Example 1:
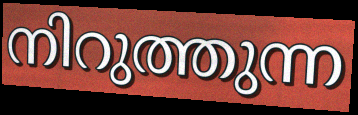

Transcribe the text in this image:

നിറുത്തുന്ന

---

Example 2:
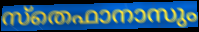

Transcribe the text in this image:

സ്തെഫാനാസും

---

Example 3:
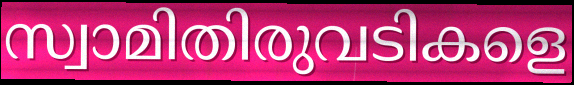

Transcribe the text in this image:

സ്വാമിതിരുവടികളെ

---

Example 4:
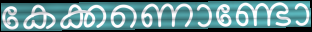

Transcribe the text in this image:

കേക്കണൊണ്ടോ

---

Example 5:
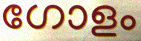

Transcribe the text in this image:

ഗോളം